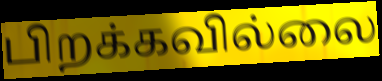
பிறக்கவில்லை